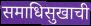
समाधिसुखाची